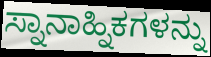
ಸ್ನಾನಾಹ್ನಿಕಗಳನ್ನು